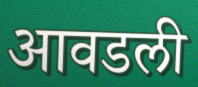
आवडली